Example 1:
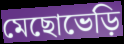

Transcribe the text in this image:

মেছোভেড়ি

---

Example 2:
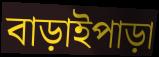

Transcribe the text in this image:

বাড়াইপাড়া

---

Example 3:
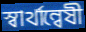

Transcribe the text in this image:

স্বার্থান্বেষী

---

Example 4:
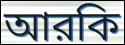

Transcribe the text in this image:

আরকি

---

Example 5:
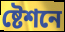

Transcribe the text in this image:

ষ্টেশনে